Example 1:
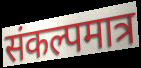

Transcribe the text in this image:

संकल्पमात्र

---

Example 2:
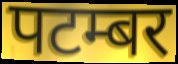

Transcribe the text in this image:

पटम्बर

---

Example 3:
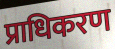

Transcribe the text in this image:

प्राधिकरण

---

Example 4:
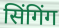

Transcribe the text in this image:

सिंगिंग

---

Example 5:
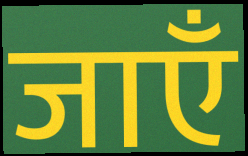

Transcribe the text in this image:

जाएँ